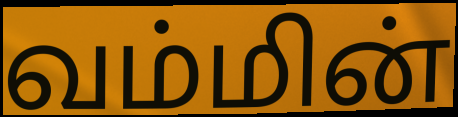
வம்மின்